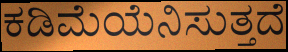
ಕಡಿಮೆಯೆನಿಸುತ್ತದೆ